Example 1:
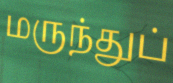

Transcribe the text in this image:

மருந்துப்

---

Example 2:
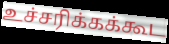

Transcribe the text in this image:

உச்சரிக்கக்கூட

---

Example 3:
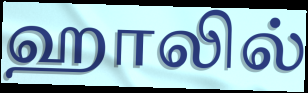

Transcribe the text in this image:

ஹாலில்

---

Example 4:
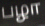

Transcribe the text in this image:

பழா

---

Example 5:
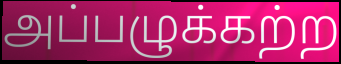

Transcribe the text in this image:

அப்பழுக்கற்ற